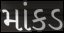
માંકડ